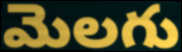
మెలగు